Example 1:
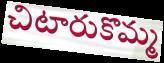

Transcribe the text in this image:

చిటారుకొమ్మ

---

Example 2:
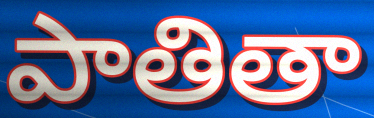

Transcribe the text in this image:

పాతితా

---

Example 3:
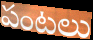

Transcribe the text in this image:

పంటలు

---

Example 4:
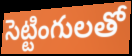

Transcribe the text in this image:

సెట్టింగులతో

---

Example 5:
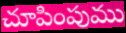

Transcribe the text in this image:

చూపింపుము